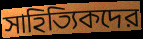
সাহিত্যিকদের